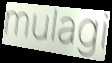
mulagi